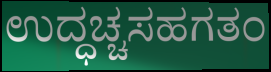
ಉದ್ಧಚ್ಚಸಹಗತಂ